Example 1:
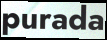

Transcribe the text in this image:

purada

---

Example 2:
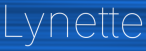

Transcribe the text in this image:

Lynette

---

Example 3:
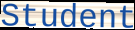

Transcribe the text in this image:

Student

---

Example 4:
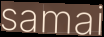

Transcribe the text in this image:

samai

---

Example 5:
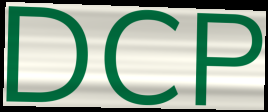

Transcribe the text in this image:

DCP